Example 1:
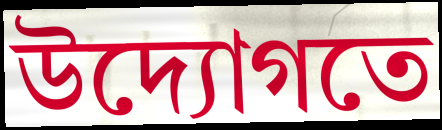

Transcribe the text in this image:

উদ্যোগতে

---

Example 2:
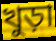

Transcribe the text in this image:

খুড়া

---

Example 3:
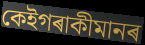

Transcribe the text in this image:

কেইগৰাকীমানৰ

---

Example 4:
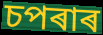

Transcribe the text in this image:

চপৰাৰ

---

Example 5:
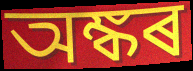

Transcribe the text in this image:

অঙ্কৰ